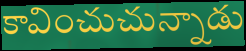
కావించుచున్నాడు